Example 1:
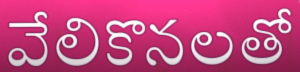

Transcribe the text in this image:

వేలికొనలతో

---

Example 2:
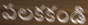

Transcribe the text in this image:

పలకకండి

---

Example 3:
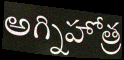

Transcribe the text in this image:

అగ్నిహోత్ర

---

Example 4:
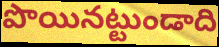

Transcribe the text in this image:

పొయినట్టుండాది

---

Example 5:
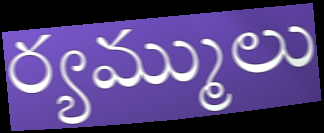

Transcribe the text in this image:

ర్యమ్ములు